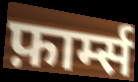
फ़ार्म्स